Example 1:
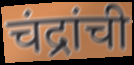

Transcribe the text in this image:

चंद्रांची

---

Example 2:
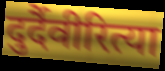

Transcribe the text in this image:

दुर्दैवीरित्या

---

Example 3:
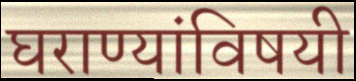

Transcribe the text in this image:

घराण्यांविषयी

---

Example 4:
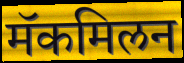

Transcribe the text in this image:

मॅकमिलन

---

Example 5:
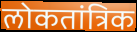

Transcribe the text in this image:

लोकतांत्रिक